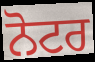
ਨੋਟਰ